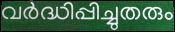
വർദ്ധിപ്പിച്ചുതരും